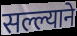
सल्ल्याने